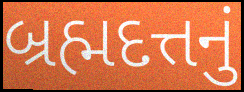
બ્રહ્મદત્તનું